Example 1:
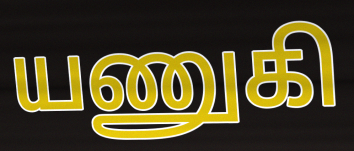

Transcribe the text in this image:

யணுகி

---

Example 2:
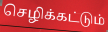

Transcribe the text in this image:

செழிக்கட்டும்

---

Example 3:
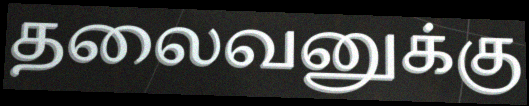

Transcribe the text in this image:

தலைவனுக்கு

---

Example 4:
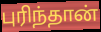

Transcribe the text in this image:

புரிந்தான்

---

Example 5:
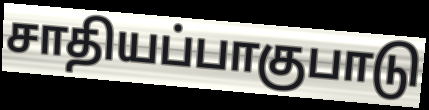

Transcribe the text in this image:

சாதியப்பாகுபாடு